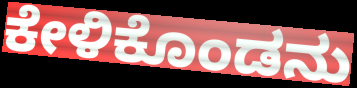
ಕೇಳಿಕೊಂಡನು